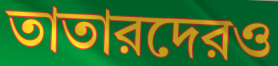
তাতারদেরও